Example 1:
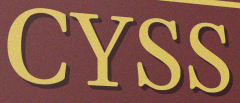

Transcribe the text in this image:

CYSS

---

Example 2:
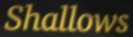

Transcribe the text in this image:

Shallows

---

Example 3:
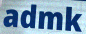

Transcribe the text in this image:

admk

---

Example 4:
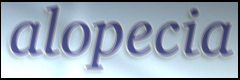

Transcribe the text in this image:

alopecia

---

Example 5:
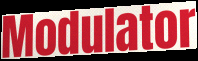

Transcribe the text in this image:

Modulator